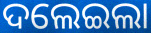
ଦଲେଇଲା